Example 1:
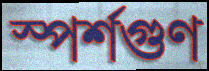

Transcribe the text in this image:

স্পর্শগুণ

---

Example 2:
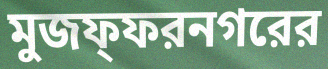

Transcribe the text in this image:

মুজফ্ফরনগরের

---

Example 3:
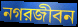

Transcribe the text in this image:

নগরজীবন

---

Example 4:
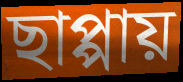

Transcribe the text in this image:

ছাপ্পায়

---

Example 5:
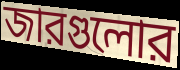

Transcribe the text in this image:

জারগুলোর